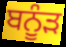
ਬਨੂੰੜ